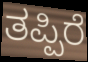
ತಪ್ಪಿರೆ